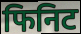
फिनिट